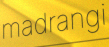
madrangi